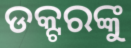
ଡକ୍ଟରଙ୍କୁ